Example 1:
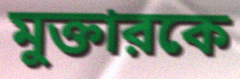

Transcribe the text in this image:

মুক্তারকে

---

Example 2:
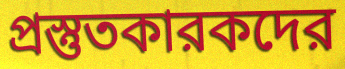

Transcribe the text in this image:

প্রস্তুতকারকদের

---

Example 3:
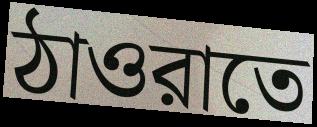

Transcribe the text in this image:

ঠাওরাতে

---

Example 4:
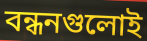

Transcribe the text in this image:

বন্ধনগুলোই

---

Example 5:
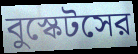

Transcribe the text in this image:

বুস্কেটসের